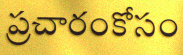
ప్రచారంకోసం